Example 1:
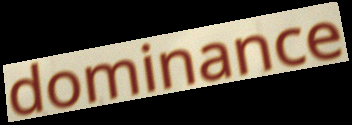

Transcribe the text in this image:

dominance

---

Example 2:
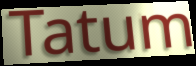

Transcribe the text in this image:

Tatum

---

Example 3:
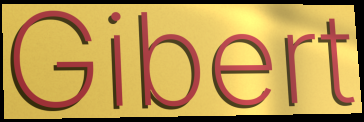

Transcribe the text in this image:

Gibert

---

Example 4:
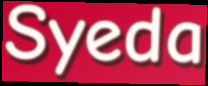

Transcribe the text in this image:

Syeda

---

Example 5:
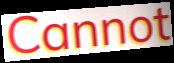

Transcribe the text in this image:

Cannot